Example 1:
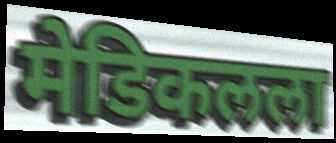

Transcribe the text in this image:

मेडिकलला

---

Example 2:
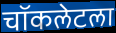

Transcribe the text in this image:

चॉकलेटला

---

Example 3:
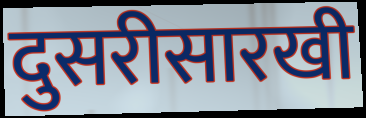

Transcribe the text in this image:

दुसरीसारखी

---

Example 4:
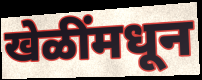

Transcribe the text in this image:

खेळींमधून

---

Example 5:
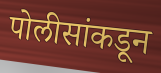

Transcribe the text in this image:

पोलीसांकडून